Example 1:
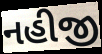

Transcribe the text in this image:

નહીજી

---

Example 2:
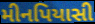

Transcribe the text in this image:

મીનપિયાસી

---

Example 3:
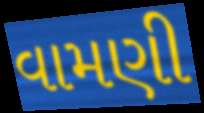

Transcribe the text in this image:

વામણી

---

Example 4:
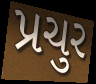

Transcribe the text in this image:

પ્રચુર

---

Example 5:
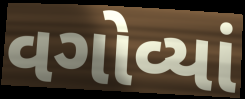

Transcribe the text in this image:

વગોવ્યાં